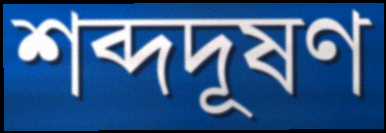
শব্দদূষণ